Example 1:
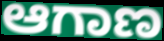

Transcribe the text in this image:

ಆಗಾಣ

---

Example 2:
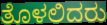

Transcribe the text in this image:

ತೊಳಲಿದರು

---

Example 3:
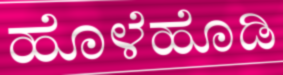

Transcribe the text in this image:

ಹೊಳೆಹೊಡಿ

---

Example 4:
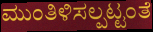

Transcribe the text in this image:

ಮುಂತಿಳಿಸಲ್ಪಟ್ಟಂತೆ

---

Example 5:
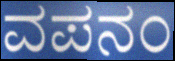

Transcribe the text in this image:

ವಪನಂ